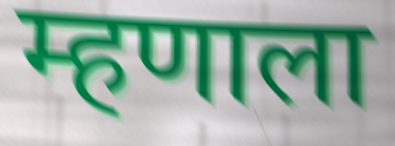
म्हणाला